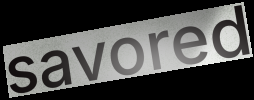
savored